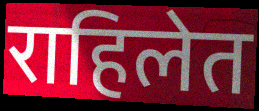
राहिलेत